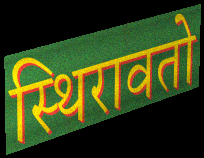
स्थिरावतो